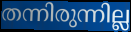
തന്നിരുന്നില്ല